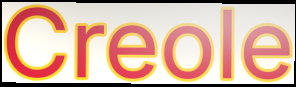
Creole